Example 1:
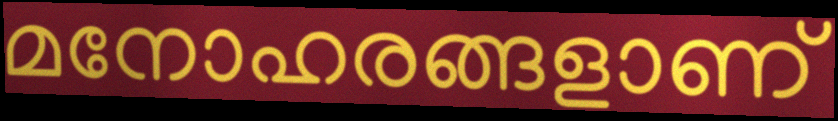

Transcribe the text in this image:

മനോഹരങ്ങളാണ്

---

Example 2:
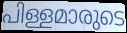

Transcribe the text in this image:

പിള്ളമാരുടെ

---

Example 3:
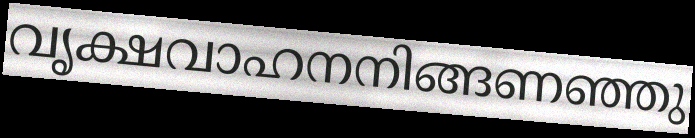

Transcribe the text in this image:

വൃക്ഷവാഹനനിങ്ങണഞ്ഞു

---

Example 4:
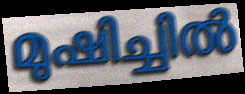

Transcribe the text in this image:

മുഷിച്ചിൽ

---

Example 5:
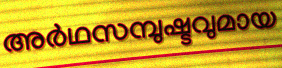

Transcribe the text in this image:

അർഥസമ്പുഷ്ടവുമായ